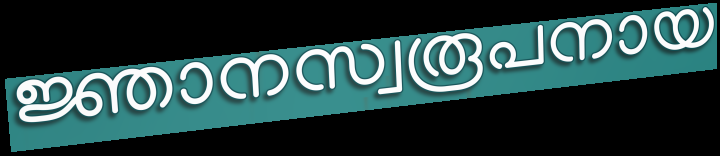
ജ്ഞാനസ്വരൂപനായ